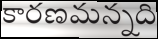
కారణమన్నది